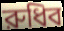
রুধিব